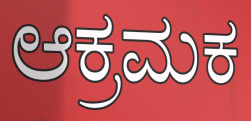
ಆಕ್ರಮಕ